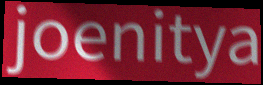
joenitya